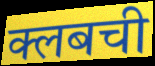
क्लबची